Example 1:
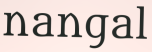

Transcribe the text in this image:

nangal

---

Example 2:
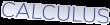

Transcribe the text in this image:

CALCULUS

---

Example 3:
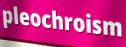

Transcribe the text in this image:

pleochroism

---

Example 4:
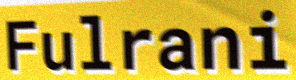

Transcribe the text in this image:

Fulrani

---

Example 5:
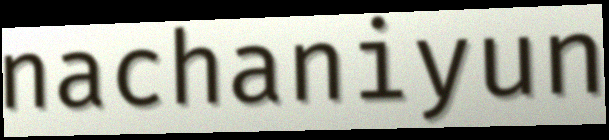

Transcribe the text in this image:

nachaniyun